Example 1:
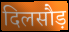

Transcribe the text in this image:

दिलसौड़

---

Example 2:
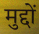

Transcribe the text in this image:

मुद्दों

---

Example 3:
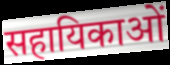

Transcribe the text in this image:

सहायिकाओं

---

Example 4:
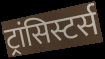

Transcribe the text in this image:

ट्रांसिस्टर्स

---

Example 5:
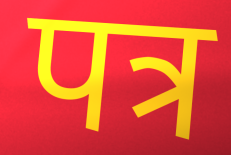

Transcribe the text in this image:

पत्र